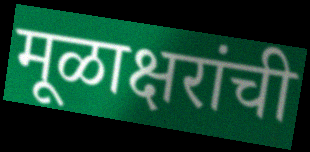
मूळाक्षरांची